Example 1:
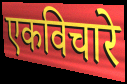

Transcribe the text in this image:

एकविचारे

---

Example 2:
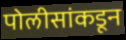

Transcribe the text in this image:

पोलीसांकडून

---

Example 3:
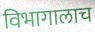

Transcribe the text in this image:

विभागालाच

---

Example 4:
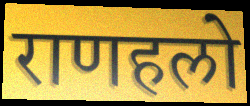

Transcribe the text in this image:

राणहलो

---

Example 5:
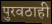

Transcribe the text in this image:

पुरवठाही